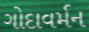
ગોદાવર્મન